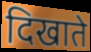
दिखाते